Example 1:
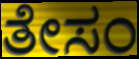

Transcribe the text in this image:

ತೇಸಂ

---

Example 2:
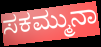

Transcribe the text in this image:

ಸಕಮ್ಮುನಾ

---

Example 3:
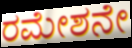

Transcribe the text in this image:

ರಮೇಶನೇ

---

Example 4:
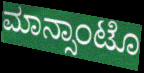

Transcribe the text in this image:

ಮಾನ್ಸಾಂಟೊ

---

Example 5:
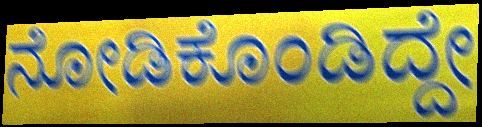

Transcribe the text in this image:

ನೋಡಿಕೊಂಡಿದ್ದೇ